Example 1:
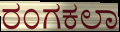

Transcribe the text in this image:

ರಂಗಕಲಾ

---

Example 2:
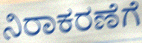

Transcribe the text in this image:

ನಿರಾಕರಣೆಗೆ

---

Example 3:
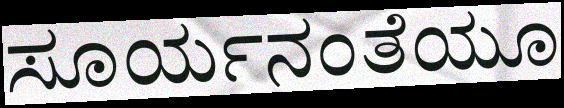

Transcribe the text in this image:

ಸೂರ್ಯನಂತೆಯೂ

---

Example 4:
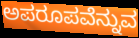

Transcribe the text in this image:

ಅಪರೂಪವೆನ್ನುವ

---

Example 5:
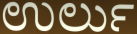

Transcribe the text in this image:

ಉರ್ಲು